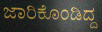
ಜಾರಿಕೊಂಡಿದ್ದ